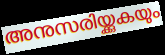
അനുസരിയ്ക്കുകയും